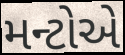
મન્ટોએ